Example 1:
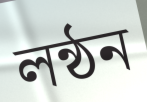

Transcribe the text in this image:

লন্ঠন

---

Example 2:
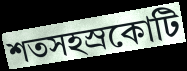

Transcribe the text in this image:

শতসহস্রকোটি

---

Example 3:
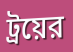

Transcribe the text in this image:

ট্রয়ের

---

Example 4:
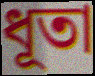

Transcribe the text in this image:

ধূতা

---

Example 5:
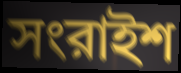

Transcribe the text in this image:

সংরাইশ